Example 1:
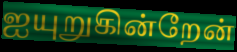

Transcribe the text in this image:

ஐயுறுகின்றேன்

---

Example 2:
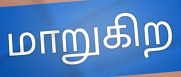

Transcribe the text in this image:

மாறுகிற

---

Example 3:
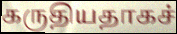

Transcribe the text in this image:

கருதியதாகச்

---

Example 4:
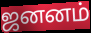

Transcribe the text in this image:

ஜனனம்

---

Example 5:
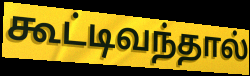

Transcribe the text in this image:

கூட்டிவந்தால்